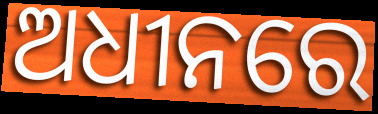
ଅଧୀନରେ